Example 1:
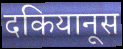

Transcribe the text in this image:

दकियानूस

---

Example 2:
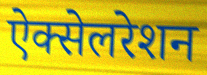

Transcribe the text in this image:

ऐक्सेलरेशन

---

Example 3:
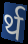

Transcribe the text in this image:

र्थ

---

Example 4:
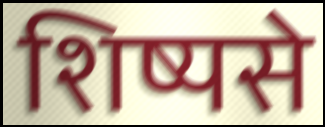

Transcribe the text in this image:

शिष्यसे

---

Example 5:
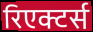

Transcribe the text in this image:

रिएक्टर्स